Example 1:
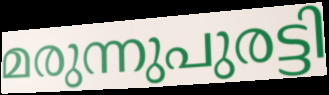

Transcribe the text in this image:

മരുന്നുപുരട്ടി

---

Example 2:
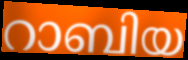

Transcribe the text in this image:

റാബിയ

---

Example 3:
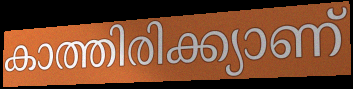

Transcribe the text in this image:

കാത്തിരിക്ക്യാണ്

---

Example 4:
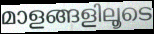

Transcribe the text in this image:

മാളങ്ങളിലൂടെ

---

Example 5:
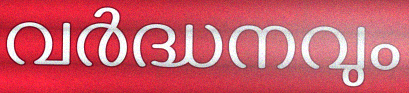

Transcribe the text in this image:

വർദ്ധനവും